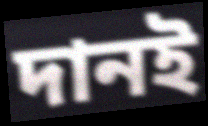
দানই